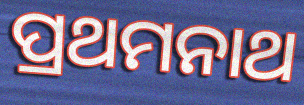
ପ୍ରଥମନାଥ